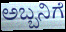
ಅಬ್ಬನಿಗೆ